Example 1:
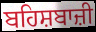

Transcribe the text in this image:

ਬਹਿਸ਼ਬਾਜ਼ੀ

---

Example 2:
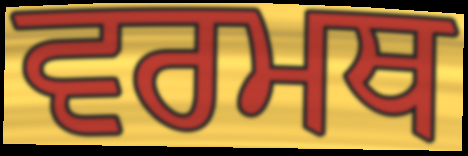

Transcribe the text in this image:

ਵਰਮਥ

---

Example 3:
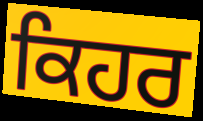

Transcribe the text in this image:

ਕਿਹਰ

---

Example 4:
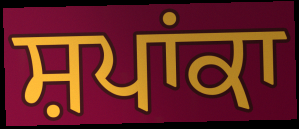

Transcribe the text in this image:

ਸ਼ਪਾਂਕਾ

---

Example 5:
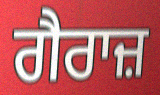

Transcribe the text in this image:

ਗੈਰਾਜ਼